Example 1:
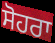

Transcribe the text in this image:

ਸੋਹਰਾ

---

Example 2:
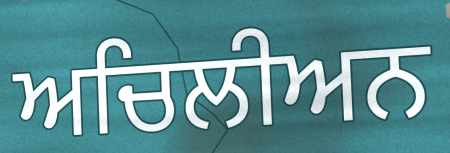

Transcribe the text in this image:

ਅਚਿਲੀਅਨ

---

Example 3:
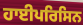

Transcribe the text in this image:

ਹਾਈਪਰਿਸਿਨ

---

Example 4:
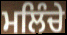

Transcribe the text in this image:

ਮਲਿੰਚੇ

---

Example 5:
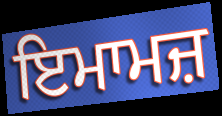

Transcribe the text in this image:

ਇਮਾਮਜ਼